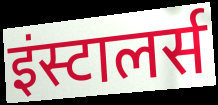
इंस्टालर्स